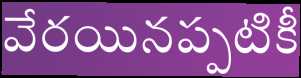
వేరయినప్పటికీ